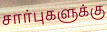
சார்புகளுக்கு